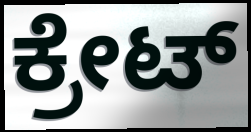
ಕ್ರೇಟ್